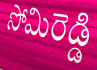
సోమిరెడ్డి